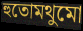
হুতোমথুমো